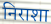
निराशा